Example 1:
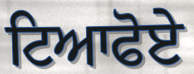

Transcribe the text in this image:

ਟਿਆਫੋਏ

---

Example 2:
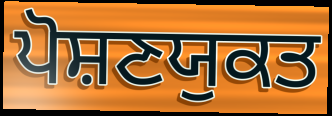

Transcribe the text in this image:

ਪੋਸ਼ਣਯੁਕਤ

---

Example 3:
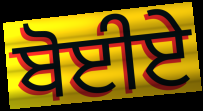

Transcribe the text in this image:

ਬੋਈਏ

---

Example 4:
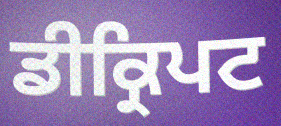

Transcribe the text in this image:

ਡੀਕ੍ਰਿਪਟ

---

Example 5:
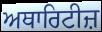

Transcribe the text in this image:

ਅਥਾਰਿਟੀਜ਼